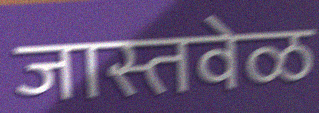
जास्तवेळ